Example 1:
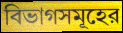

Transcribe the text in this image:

বিভাগসমূহের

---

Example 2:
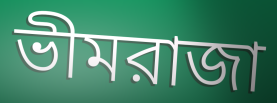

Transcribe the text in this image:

ভীমরাজা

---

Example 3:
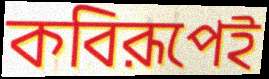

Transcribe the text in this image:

কবিরূপেই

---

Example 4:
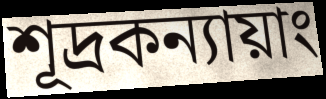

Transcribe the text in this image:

শূদ্রকন্যায়াং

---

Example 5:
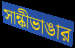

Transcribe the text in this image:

সান্কীভাঙার